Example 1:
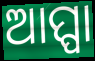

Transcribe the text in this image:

ଆପ୍ପା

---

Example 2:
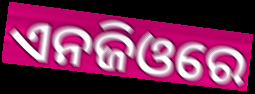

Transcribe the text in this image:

ଏନଜିଓରେ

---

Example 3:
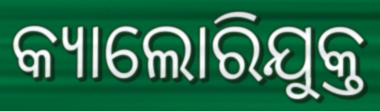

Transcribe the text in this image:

କ୍ୟାଲୋରିଯୁକ୍ତ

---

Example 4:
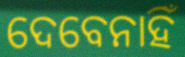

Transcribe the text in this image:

ଦେବେନାହିଁ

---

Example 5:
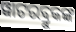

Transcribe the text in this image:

ୱାଟରବ୍ରୁକଙ୍କ